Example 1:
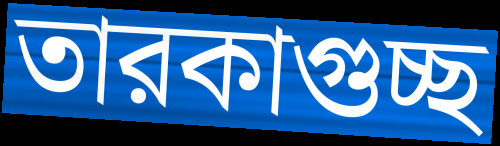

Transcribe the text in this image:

তারকাগুচ্ছ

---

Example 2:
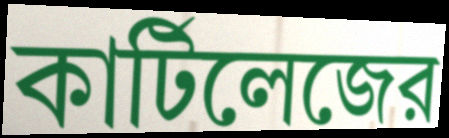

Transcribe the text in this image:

কার্টিলেজের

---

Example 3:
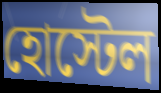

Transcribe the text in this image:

হোস্টেল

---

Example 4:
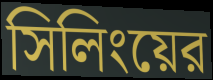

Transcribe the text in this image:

সিলিংয়ের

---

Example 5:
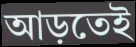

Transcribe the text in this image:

আড়তেই